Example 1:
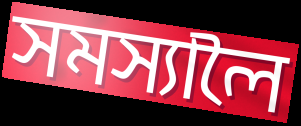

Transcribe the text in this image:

সমস্যালৈ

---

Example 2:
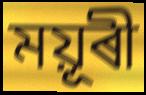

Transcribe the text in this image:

ময়ূৰী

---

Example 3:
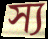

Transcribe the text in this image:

স্য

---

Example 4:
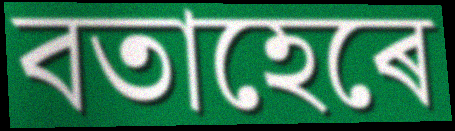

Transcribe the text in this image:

বতাহেৰে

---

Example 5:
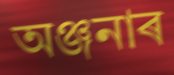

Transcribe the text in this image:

অঞ্জনাৰ